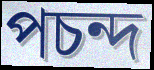
পচন্দ